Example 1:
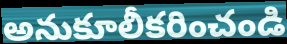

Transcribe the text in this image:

అనుకూలీకరించండి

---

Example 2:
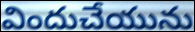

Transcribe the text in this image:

విందుచేయును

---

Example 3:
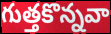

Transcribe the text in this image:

గుత్తకొన్నవా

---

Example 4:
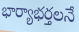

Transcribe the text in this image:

భార్యాభర్తలనే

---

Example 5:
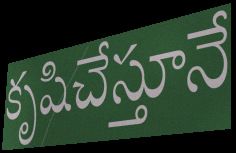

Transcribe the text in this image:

కృషిచేస్తూనే